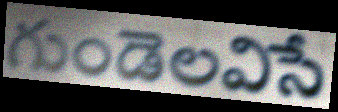
గుండెలవిసే